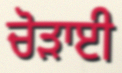
ਚੋੜਾਈ